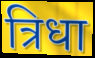
त्रिधा